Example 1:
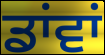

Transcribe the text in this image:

ਡਾਂਵਾਂ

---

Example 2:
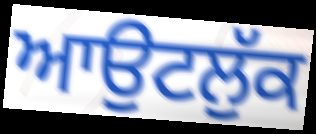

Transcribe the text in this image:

ਆਉਟਲੁੱਕ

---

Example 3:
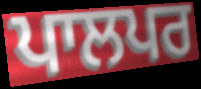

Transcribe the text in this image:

ਪਾਲਪਰ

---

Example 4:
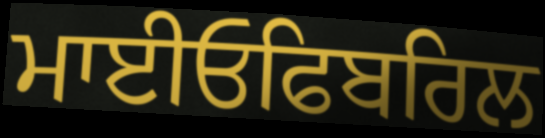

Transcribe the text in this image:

ਮਾਈਓਫਿਬਰਿਲ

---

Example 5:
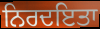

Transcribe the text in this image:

ਨਿਰਦਇਤਾ